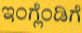
ಇಂಗ್ಲೆಂಡಿಗೆ